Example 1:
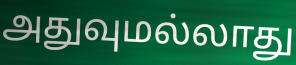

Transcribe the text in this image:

அதுவுமல்லாது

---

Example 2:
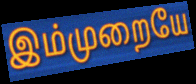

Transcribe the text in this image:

இம்முறையே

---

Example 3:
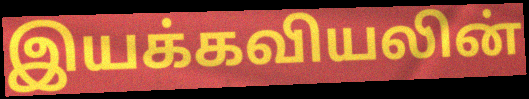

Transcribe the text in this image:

இயக்கவியலின்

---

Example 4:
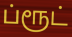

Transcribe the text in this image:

ப்ரூட்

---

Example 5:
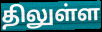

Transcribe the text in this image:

திலுள்ள